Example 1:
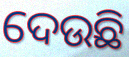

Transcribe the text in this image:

ଦେଉଛି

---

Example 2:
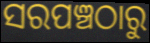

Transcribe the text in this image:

ସରପଞ୍ଚଠାରୁ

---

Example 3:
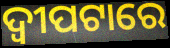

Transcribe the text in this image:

ଦ୍ୱୀପଟାରେ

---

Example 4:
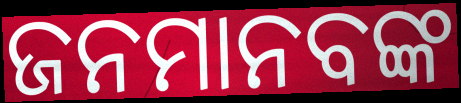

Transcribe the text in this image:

ଜନମାନବଙ୍କ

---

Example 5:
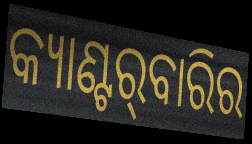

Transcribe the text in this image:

କ୍ୟାଣ୍ଟର୍‌ବାରିର